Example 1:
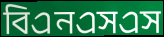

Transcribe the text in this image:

বিএনএসএস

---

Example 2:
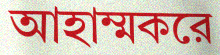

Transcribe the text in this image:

আহাম্মকরে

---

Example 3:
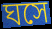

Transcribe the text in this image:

ঘসে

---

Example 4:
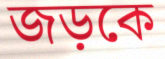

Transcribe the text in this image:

জড়কে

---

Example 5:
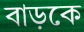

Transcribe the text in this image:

বাড়কে